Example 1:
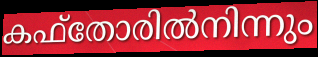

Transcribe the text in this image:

കഫ്തോരിൽനിന്നും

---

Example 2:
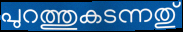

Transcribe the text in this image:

പുറത്തുകടന്നതു്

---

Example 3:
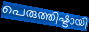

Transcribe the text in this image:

പെരുത്തിഷ്ടായി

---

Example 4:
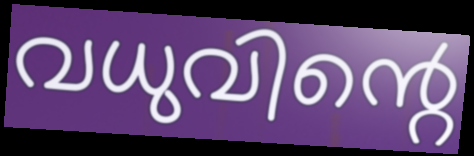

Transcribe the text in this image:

വധുവിന്റെ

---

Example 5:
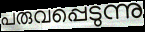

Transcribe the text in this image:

പരുവപ്പെടുന്നു